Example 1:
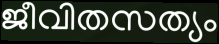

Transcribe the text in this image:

ജീവിതസത്യം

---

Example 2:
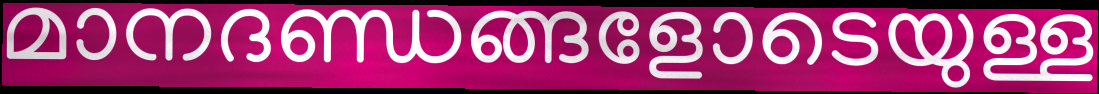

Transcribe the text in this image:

മാനദണ്ഡങ്ങളോടെയുള്ള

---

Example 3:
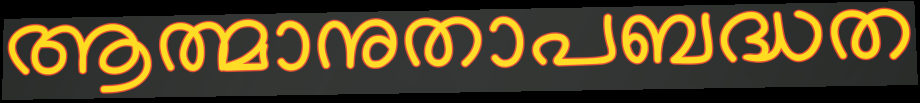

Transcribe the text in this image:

ആത്മാനുതാപബദ്ധത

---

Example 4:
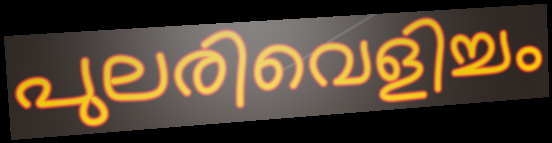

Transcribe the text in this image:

പുലരിവെളിച്ചം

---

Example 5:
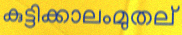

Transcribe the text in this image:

കുട്ടിക്കാലംമുതല്